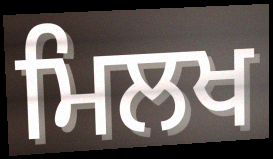
ਮਿਲਖ